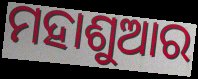
ମହାଶୁଆର